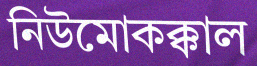
নিউমোকক্কাল